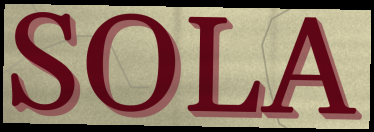
SOLA